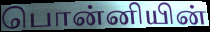
பொன்னியின்